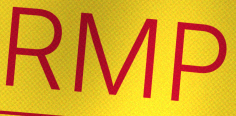
RMP